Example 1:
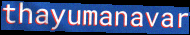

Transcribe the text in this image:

thayumanavar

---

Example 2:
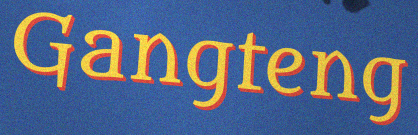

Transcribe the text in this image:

Gangteng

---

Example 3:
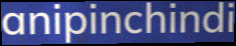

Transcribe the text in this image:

anipinchindi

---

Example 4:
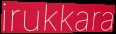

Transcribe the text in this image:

irukkara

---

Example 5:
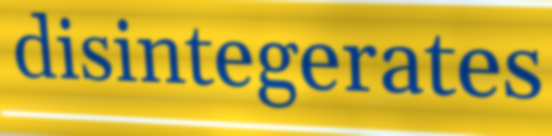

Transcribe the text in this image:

disintegerates